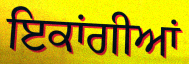
ਇਕਾਂਗੀਆਂ